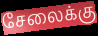
சேலைக்கு